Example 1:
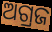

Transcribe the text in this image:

ଅଗ୍ରଜ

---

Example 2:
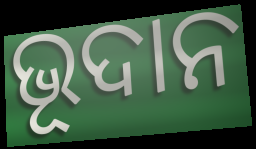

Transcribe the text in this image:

ଭୂଦାନ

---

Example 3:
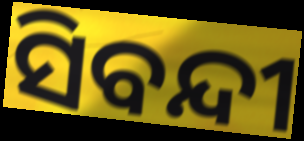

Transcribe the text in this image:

ସିବନ୍ଦୀ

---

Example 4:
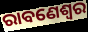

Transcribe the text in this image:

ରାବଣେଶ୍ୱର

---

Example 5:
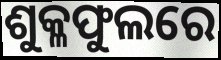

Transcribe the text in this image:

ଶୁକ୍ଳଫୁଲରେ